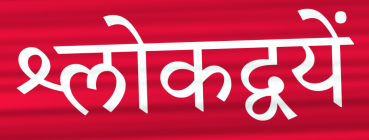
श्लोकद्वयें